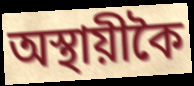
অস্থায়ীকৈ